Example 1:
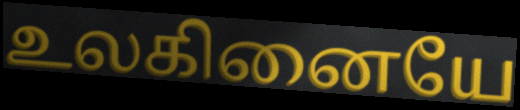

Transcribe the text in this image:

உலகினையே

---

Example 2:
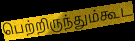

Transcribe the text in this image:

பெற்றிருந்தும்கூட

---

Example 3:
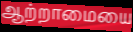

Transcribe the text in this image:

ஆற்றாமையை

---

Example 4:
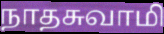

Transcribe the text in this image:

நாதசுவாமி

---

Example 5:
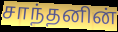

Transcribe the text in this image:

சாந்தனின்